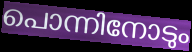
പൊന്നിനോടും